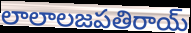
లాలాలజపతిరాయ్